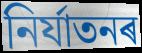
নিৰ্যাতনৰ